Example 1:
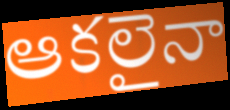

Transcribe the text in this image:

ఆకలైనా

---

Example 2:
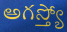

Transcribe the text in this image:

అగస్త్యో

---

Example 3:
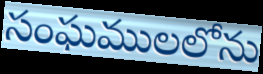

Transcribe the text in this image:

సంఘములలోను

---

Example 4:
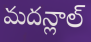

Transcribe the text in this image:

మదన్లాల్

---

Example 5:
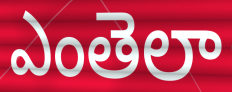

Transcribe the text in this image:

ఎంతెలా